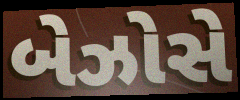
બેઝોસે